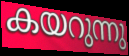
കയറുന്നു